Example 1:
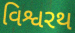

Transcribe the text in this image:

વિશ્વરથ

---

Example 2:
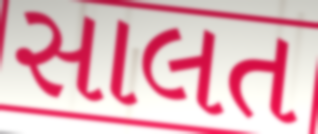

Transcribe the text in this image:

સાલત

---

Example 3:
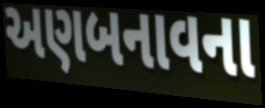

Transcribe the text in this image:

અણબનાવના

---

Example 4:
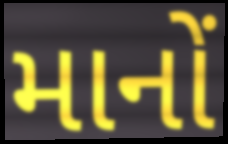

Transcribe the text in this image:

માનોં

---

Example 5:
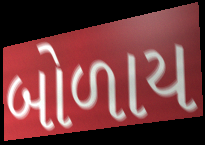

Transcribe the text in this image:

બોળાય